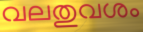
വലതുവശം